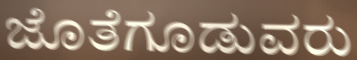
ಜೊತೆಗೂಡುವರು